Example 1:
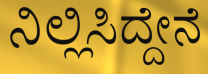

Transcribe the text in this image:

ನಿಲ್ಲಿಸಿದ್ದೇನೆ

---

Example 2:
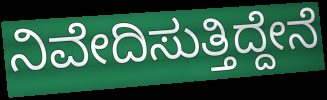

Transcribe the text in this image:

ನಿವೇದಿಸುತ್ತಿದ್ದೇನೆ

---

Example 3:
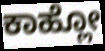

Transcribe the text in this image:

ಕಾಹ್ಲೋ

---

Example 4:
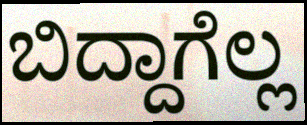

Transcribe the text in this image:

ಬಿದ್ದಾಗೆಲ್ಲ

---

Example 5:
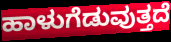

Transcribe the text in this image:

ಹಾಳುಗೆಡುವುತ್ತದೆ